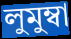
লুমুম্বা